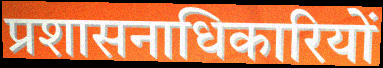
प्रशासनाधिकारियों